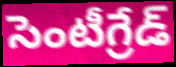
సెంటీగ్రేడ్